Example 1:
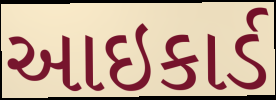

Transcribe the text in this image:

આઇકાર્ડ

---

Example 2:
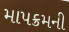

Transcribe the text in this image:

માપક્રમની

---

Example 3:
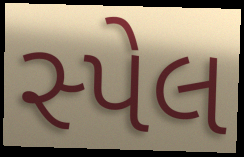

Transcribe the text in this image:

સ્પેલ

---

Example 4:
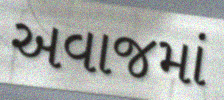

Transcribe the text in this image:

અવાજમાં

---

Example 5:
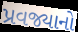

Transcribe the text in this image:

પ્રવજ્યાનો